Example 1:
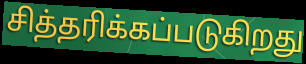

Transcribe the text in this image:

சித்தரிக்கப்படுகிறது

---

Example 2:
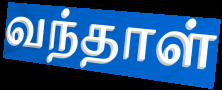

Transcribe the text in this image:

வந்தாள்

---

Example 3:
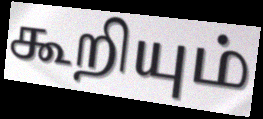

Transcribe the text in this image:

கூறியும்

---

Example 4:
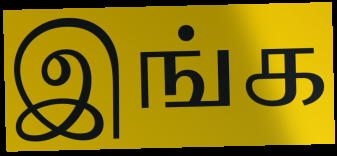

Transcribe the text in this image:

இங்க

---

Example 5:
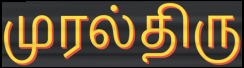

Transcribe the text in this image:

முரல்திரு